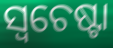
ସ୍ଵଚେଷ୍ଟା